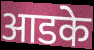
आडके